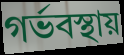
গর্ভবস্থায়